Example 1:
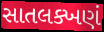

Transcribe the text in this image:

સાતલક્ખણં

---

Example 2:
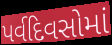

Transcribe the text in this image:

પર્વદિવસોમાં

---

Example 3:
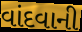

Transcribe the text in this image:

વાંદવાની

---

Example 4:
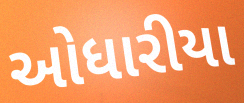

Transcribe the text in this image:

ઓધારીયા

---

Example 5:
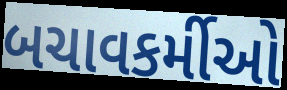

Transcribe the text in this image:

બચાવકર્મીઓ